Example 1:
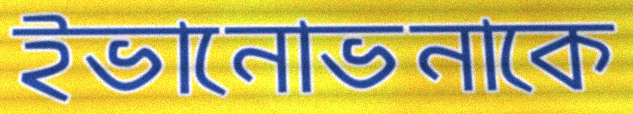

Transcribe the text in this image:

ইভানোভনাকে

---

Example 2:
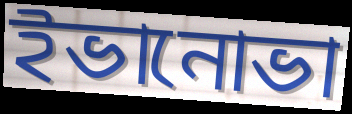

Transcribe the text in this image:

ইভানোভা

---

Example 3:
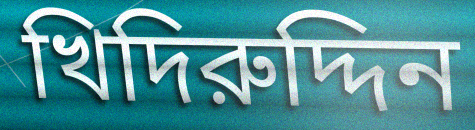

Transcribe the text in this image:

খিদিরুদ্দিন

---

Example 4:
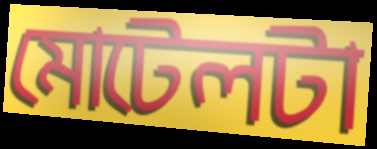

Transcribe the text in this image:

মোটেলটা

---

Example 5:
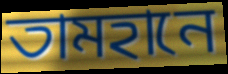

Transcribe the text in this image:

তামহানে